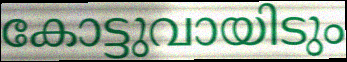
കോട്ടുവായിടും